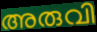
അരുവി